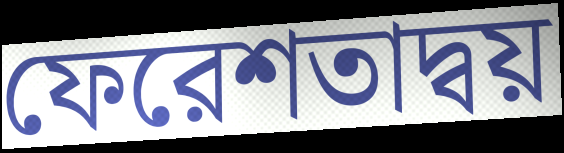
ফেরেশতাদ্বয়